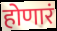
होणारं